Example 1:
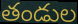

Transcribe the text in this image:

తండుల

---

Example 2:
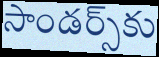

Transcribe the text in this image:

సాండర్స్‌కు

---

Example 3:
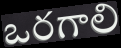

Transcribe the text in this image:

ఒరగాలి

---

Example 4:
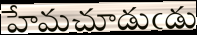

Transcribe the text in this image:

హేమచూడుఁడు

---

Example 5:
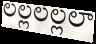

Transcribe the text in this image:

లల్లలల్లలా